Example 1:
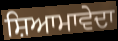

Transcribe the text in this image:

ਸ਼ਿਆਮਾਵੇਦਾ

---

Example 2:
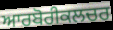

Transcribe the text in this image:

ਆਰਬੋਰੀਕਲਚਰ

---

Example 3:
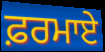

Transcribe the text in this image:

ਫ਼ਰਮਾਏ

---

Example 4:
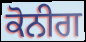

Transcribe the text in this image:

ਕੋਨੀਗ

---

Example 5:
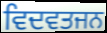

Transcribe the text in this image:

ਵਿਦਵਤਜਨ